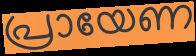
പ്രായേണ